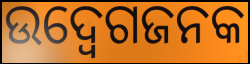
ଉଦ୍ବେଗଜନକ